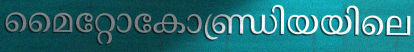
മൈറ്റോകോണ്ഡ്രിയയിലെ